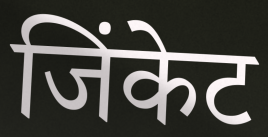
जिंकेट